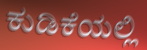
ಕುಡಿಕೆಯಲ್ಲಿ